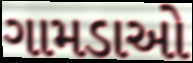
ગામડાઓ